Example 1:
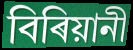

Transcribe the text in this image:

বিৰিয়ানী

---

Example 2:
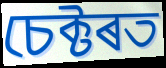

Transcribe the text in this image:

চেক্টৰত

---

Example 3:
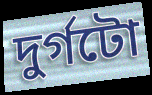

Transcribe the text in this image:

দুৰ্গটো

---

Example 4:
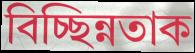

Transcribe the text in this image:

বিচ্ছিন্নতাক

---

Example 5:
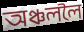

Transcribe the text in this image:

অঞ্চললৈ